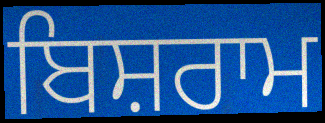
ਬਿਸ਼ਰਾਮ